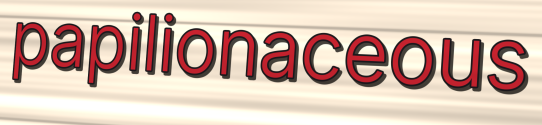
papilionaceous